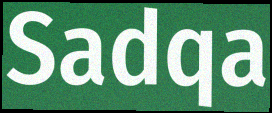
Sadqa